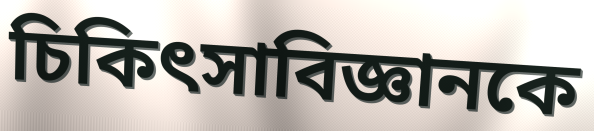
চিকিৎসাবিজ্ঞানকে